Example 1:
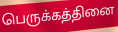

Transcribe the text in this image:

பெருக்கத்தினை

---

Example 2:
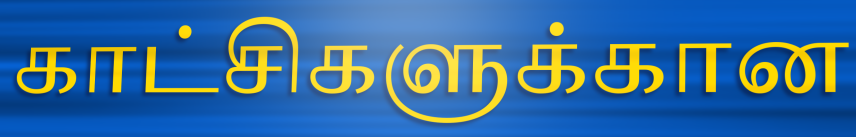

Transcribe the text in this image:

காட்சிகளுக்கான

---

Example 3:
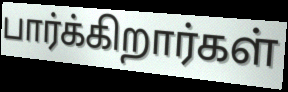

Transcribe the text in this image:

பார்க்கிறார்கள்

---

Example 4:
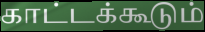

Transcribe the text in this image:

காட்டக்கூடும்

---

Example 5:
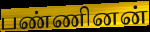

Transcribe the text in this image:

பண்ணினன்